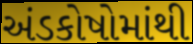
અંડકોષોમાંથી